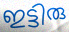
ഇട്ടിരു